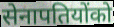
सेनापतियोंको